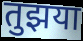
तुझया